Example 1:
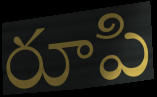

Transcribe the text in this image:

రూపి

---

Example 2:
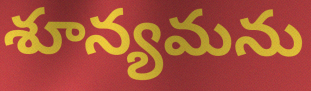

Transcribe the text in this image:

శూన్యమను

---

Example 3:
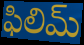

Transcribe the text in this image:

ఫిలిమ్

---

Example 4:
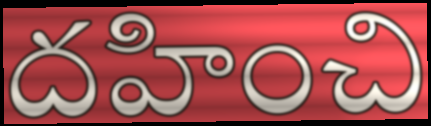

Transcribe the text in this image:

దహించి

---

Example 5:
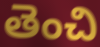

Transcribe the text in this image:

తెంచి